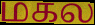
மகல